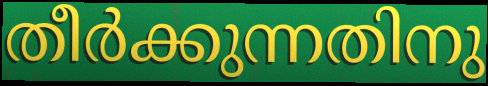
തീർക്കുന്നതിനു